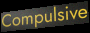
Compulsive